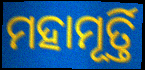
ମହାମୂର୍ତ୍ତି